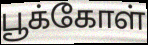
பூக்கோள்